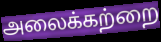
அலைக்கற்றை